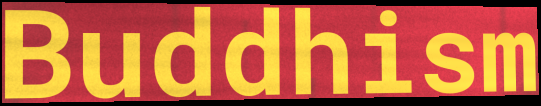
Buddhism